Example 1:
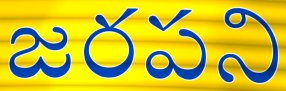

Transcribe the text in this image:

జరపని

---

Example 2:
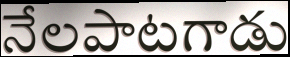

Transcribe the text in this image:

నేలపాటగాడు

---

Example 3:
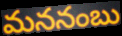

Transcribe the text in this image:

మననంబు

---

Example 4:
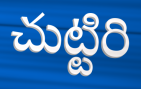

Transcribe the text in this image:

చుట్టిరి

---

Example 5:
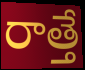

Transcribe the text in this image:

రాత్తే